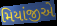
મિયાંજીએ